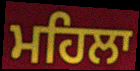
ਮਹਿਲਾ